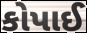
કોપાઈ